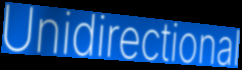
Unidirectional